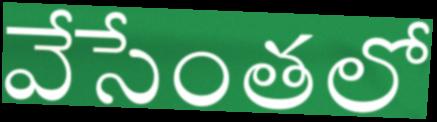
వేసేంతలో